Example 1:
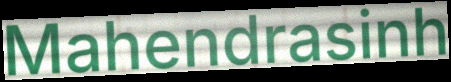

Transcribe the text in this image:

Mahendrasinh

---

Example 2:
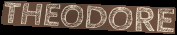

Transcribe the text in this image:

THEODORE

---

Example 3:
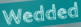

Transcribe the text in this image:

Wedded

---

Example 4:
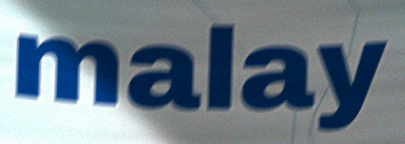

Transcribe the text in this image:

malay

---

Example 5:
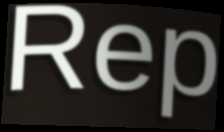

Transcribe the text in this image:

Rep